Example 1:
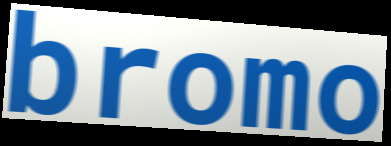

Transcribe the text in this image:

bromo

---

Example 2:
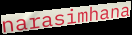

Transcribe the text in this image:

narasimhana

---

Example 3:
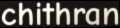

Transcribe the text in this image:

chithran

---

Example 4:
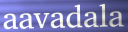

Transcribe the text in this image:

aavadala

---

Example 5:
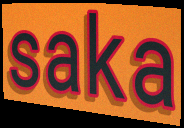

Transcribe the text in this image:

saka